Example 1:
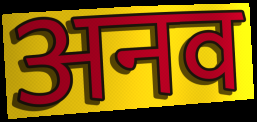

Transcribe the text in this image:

अनव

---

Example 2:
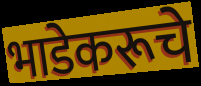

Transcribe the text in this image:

भाडेकरूचे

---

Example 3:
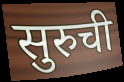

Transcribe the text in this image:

सुरुची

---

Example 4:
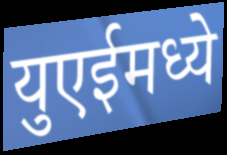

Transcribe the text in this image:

युएईमध्ये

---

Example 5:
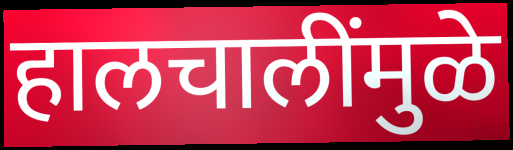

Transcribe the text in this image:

हालचालींमुळे